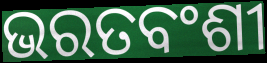
ଭରତବଂଶୀ